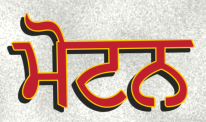
ਮੋਟਨ